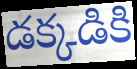
డక్కడికి